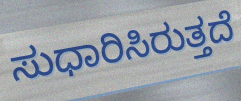
ಸುಧಾರಿಸಿರುತ್ತದೆ